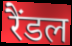
रैंडल